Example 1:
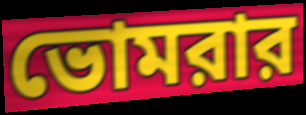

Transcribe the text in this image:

ভোমরার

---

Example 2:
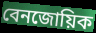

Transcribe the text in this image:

বেনজোয়িক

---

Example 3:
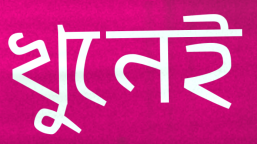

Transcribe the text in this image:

খুনেই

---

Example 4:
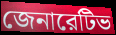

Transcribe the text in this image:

জেনারেটিভ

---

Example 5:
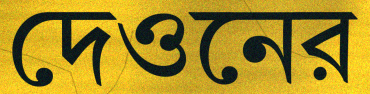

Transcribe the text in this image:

দেওনের